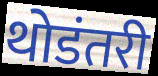
थोडंतरी